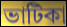
ভাটিকা